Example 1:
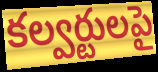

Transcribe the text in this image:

కల్వర్టులపై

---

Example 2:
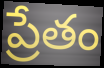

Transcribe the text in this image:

ప్రేతం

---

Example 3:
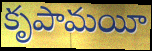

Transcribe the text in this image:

కృపామయీ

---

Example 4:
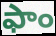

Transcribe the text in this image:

ఫాం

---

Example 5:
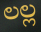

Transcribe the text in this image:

లల్ల